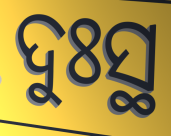
ଦୁଃସ୍ଥ